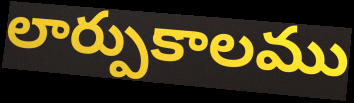
లార్పుకాలము